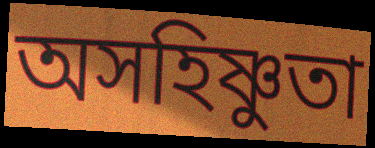
অসহিষ্ণুতা